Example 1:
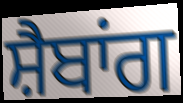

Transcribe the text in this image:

ਸ਼ੈਬਾਂਗ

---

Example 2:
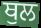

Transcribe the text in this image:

ਥੁਲ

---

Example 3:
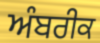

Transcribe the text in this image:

ਅੰਬਰੀਕ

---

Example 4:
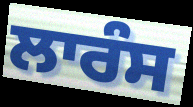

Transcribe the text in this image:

ਲਾਰੰਸ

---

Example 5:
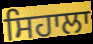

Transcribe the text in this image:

ਸਿਹਾਲਾ